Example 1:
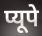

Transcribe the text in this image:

प्यूपे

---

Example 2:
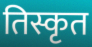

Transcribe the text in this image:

तिस्कृत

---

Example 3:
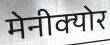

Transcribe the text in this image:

मेनीक्योर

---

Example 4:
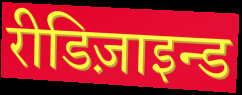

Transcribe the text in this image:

रीडिज़ाइन्ड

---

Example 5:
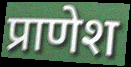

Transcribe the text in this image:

प्राणेश